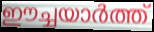
ഈച്ചയാർത്ത്